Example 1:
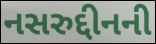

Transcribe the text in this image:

નસરુદ્દીનની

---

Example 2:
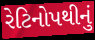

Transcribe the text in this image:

રેટિનોપથીનું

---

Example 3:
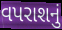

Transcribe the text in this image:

વપરાશનું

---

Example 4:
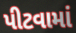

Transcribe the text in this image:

પીટવામાં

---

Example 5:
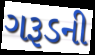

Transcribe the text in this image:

ગરૂડની